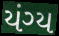
યંગ્ય